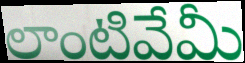
లాంటివేమీ